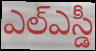
ఎల్ఎస్డీ